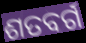
ଶତବର୍ଗ